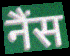
नैंस